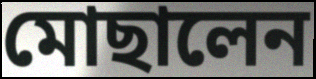
মোছালেন